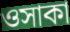
ওসাকা